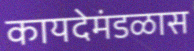
कायदेमंडळास